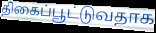
திகைப்பூட்டுவதாக